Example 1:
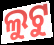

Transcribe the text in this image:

ଲୁଟୁ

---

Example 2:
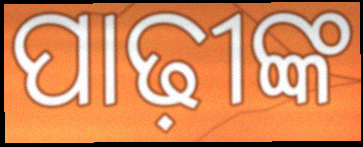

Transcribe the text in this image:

ପାଢ଼ୀଙ୍କ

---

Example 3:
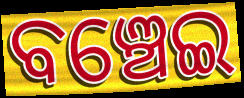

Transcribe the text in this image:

ବଞ୍ଚେଇ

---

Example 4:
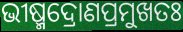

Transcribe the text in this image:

ଭୀଷ୍ମଦ୍ରୋଣପ୍ରମୁଖତଃ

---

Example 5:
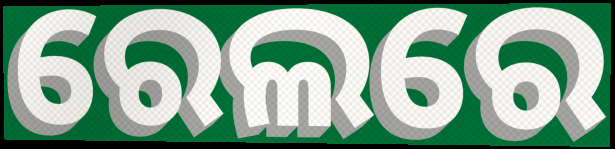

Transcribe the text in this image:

ରେଲରେ